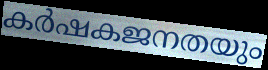
കർഷകജനതയും